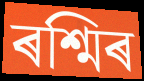
ৰশ্মিৰ